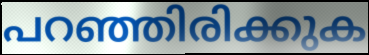
പറഞ്ഞിരിക്കുക